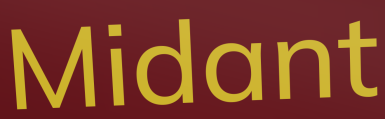
Midant